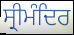
ਸ੍ਰੀਮੰਦਿਰ